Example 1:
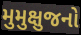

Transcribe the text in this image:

મુમુક્ષુજનો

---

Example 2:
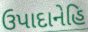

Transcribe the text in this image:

ઉપાદાનેહિ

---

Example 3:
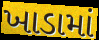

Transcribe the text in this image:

ખાડામાં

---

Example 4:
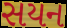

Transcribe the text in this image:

સયન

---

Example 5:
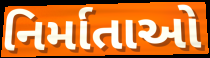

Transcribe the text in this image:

નિર્માતાઓ